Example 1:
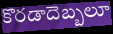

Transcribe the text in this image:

కొరడాదెబ్బలూ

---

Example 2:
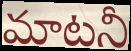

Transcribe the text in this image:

మాటనీ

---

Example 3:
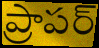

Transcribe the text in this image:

ప్రాపర్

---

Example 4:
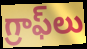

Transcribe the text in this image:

గ్రాఫ్‌లు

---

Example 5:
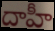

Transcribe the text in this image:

దాహీ